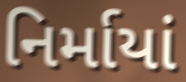
નિર્માયાં